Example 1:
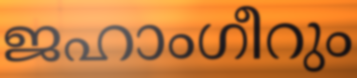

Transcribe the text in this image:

ജഹാംഗീറും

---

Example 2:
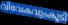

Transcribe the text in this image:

വിവേകവുംകൂടി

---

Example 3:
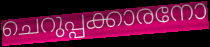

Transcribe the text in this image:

ചെറുപ്പക്കാരനോ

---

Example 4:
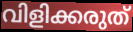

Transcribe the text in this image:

വിളിക്കരുത്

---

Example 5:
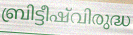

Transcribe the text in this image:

ബ്രിട്ടീഷ്‌വിരുദ്ധ